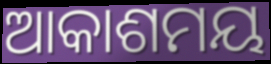
ଆକାଶମୟ